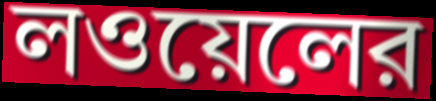
লওয়েলের